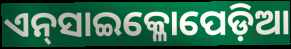
ଏନ୍‌ସାଇକ୍ଳୋପେଡ଼ିଆ